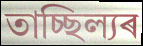
তাচ্ছিল্যৰ